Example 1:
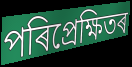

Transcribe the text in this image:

পৰিপ্ৰেক্ষিতৰ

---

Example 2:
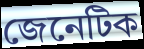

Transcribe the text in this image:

জেনেটিক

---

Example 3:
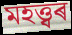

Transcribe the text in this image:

মহত্ত্বৰ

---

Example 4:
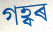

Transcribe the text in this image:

গহ্বৰ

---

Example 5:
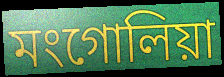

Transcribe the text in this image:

মংগোলিয়া